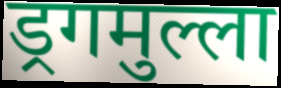
ड्रगमुल्ला